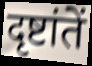
दृष्टांतें